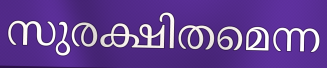
സുരക്ഷിതമെന്ന